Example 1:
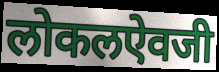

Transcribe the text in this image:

लोकलऐवजी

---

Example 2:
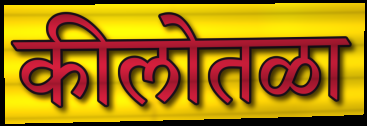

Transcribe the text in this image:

कीलोतळा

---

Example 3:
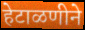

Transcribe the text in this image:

हेटाळणीने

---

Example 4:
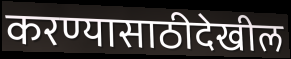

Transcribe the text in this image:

करण्यासाठीदेखील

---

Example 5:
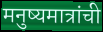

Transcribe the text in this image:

मनुष्यमात्रांची